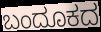
ಬಂದೂಕದ